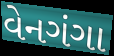
વેનગંગા